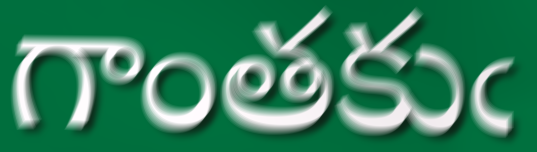
గాంతకుఁ